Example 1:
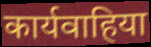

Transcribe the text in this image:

कार्यवाहिया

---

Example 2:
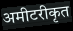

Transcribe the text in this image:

अमीटरीकृत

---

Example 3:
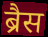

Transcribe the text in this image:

ब्रैस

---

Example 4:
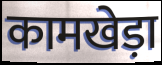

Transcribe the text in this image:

कामखेड़ा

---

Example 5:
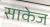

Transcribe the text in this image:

साकेज